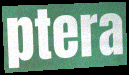
ptera